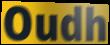
Oudh